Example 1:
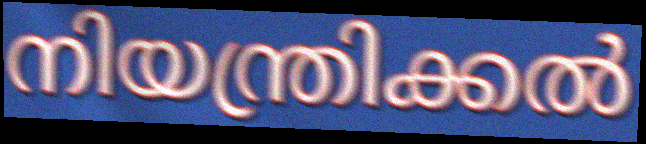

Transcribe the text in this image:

നിയന്ത്രിക്കൽ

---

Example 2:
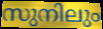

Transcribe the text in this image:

സുനിലും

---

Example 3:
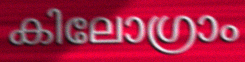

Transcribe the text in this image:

കിലോഗ്രാം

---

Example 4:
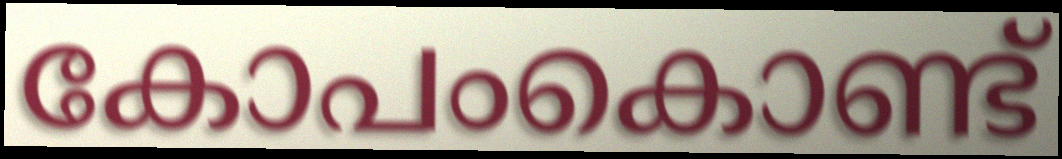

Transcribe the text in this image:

കോപംകൊണ്ട്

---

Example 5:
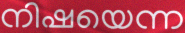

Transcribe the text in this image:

നിഷയെന്ന